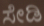
ಸೇಡಿ